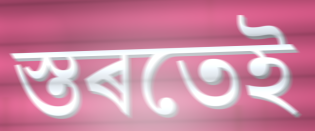
স্তৰতেই